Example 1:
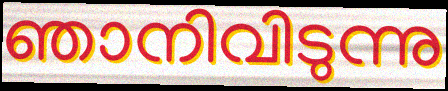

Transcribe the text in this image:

ഞാനിവിടുന്നു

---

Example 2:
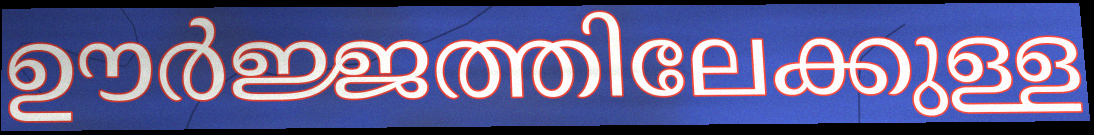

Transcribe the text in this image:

ഊർജ്ജത്തിലേക്കുള്ള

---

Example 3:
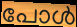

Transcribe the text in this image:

പോൾ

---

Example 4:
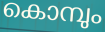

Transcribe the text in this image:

കൊമ്പും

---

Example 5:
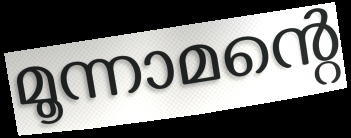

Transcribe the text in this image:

മൂന്നാമന്റെ